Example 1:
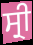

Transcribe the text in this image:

ਸ੍ਰੀ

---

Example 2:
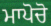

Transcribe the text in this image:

ਮਾਪੋਚੋ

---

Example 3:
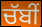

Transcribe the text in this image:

ਚੱਬੀਂ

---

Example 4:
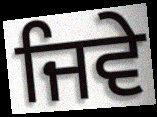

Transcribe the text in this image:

ਜਿਵੇ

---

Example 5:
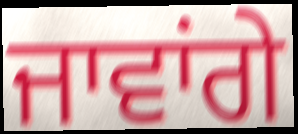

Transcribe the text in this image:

ਜਾਵਾਂਗੇ